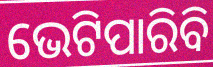
ଭେଟିପାରିବି